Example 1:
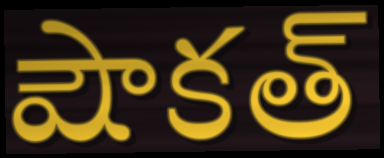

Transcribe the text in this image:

షౌకత్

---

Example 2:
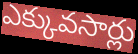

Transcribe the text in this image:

ఎక్కువసార్లు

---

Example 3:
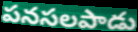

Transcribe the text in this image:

పనసలపాడు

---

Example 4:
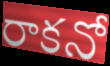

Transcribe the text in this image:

రాకనో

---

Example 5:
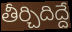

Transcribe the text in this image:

తీర్చిదిద్దే